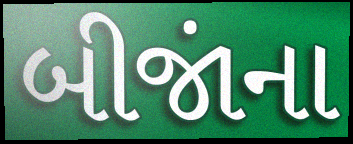
બીજાંના